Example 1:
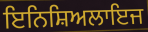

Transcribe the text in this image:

ਇਨਿਸ਼ਿਅਲਾਇਜ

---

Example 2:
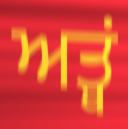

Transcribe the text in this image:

ਅਤ੍ਥਂ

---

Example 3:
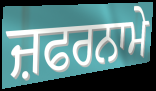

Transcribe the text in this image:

ਜ਼ਫਰਨਾਮੇ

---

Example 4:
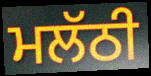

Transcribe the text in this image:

ਮਲੱਠੀ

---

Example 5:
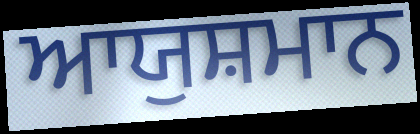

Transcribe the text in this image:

ਆਯੁਸ਼ਮਾਨ